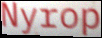
Nyrop